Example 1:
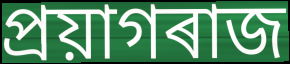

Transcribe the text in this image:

প্ৰয়াগৰাজ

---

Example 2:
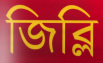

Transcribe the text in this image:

জিব্লি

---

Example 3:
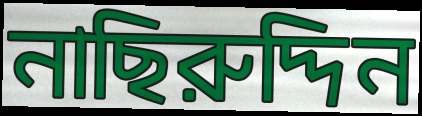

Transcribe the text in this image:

নাছিৰুদ্দিন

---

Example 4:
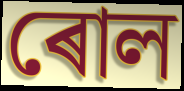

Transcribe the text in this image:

ৰোল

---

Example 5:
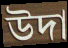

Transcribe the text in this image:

উদা